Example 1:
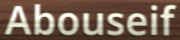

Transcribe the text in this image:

Abouseif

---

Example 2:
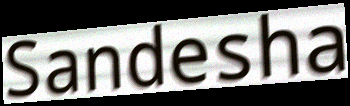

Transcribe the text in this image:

Sandesha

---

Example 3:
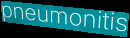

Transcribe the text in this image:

pneumonitis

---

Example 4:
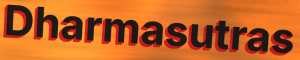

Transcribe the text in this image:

Dharmasutras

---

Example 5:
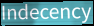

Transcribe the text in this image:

Indecency